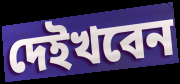
দেইখবেন